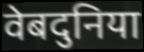
वेबदुनिया